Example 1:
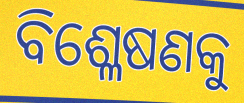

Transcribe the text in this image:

ବିଶ୍ଳେଷଣକୁ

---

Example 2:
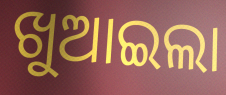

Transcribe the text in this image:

ଖୁଆଇଲା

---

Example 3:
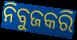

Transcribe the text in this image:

ନିବୁଜକରି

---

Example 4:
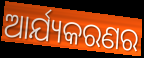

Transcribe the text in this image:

ଆର୍ଯ୍ୟକରଣର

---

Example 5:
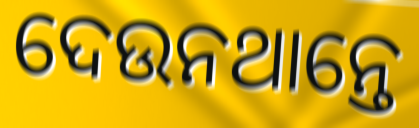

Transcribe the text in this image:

ଦେଉନଥାନ୍ତେ